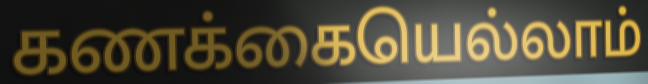
கணக்கையெல்லாம்